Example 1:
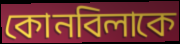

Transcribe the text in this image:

কোনবিলাকে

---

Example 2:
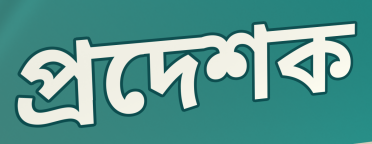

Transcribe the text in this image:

প্ৰদেশক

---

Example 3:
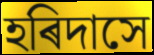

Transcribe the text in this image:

হৰিদাসে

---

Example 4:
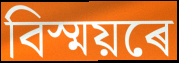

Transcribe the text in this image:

বিস্ময়ৰে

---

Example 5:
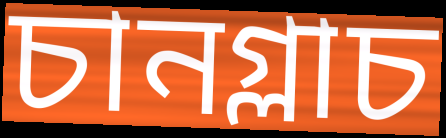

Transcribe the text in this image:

চানগ্লাচ